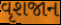
વૃશજાન